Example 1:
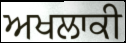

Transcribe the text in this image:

ਅਖਲਾਕੀ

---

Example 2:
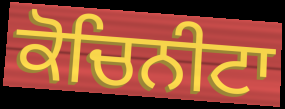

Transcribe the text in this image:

ਕੋਚਿਨੀਟਾ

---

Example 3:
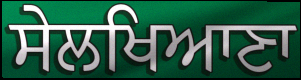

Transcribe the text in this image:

ਸੇਲਖਿਆਣਾ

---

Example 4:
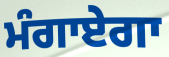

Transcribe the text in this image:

ਮੰਗਾਏਗਾ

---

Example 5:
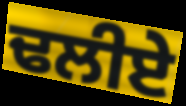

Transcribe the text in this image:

ਢਲੀਏ